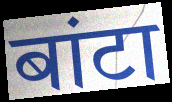
बांटा